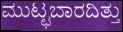
ಮುಟ್ಟಬಾರದಿತ್ತು